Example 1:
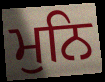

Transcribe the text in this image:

ਮੁਨਿ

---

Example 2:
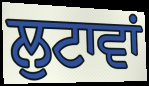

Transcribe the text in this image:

ਲੁਟਾਵਾਂ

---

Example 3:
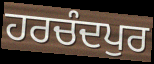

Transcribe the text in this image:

ਹਰਚੰਦਪੁਰ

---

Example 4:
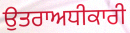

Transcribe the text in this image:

ਉਤਰਾਅਧੀਕਾਰੀ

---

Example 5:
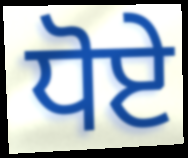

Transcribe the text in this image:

ਧੋਏ